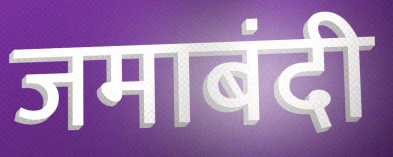
जमाबंदी